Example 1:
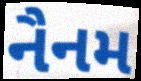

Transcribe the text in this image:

નૈનમ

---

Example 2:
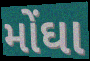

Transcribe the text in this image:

મોંઘા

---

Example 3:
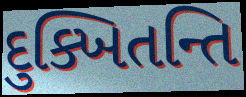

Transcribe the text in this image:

દુક્ખિતન્તિ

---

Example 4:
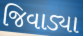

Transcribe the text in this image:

જિવાડ્યા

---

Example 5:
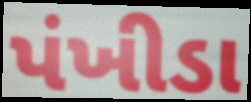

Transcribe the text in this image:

પંખીડા